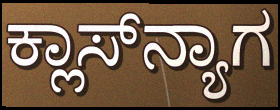
ಕ್ಲಾಸ್‌ನ್ಯಾಗ